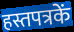
हस्तपत्रकें